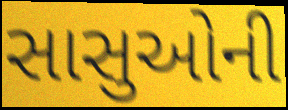
સાસુઓની